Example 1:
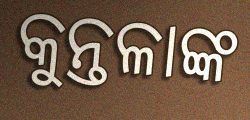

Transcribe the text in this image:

କୁନ୍ତଳାଙ୍କ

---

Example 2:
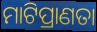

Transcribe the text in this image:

ମାଟିପ୍ରାଣତା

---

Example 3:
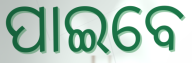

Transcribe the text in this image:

ପାଇବେ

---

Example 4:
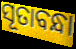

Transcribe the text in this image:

ସୂତାବନ୍ଧା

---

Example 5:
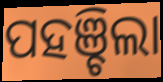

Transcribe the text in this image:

ପହଞ୍ଚିଲା